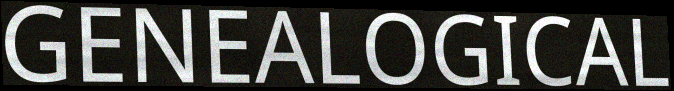
GENEALOGICAL